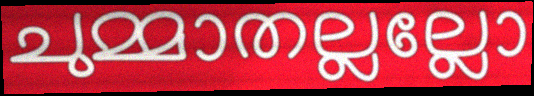
ചുമ്മാതല്ലല്ലോ